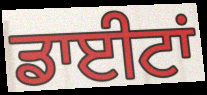
ਡਾਈਟਾਂ